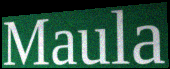
Maula